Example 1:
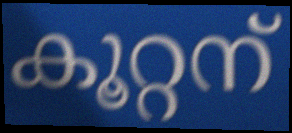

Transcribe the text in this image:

കൂറ്റന്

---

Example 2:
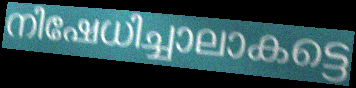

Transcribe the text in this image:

നിഷേധിച്ചാലാകട്ടെ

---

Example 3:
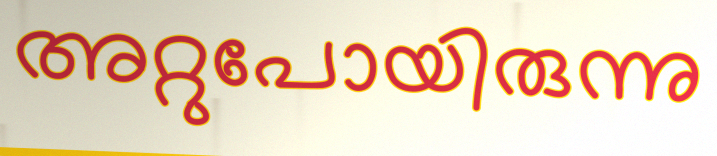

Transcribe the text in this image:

അറ്റുപോയിരുന്നു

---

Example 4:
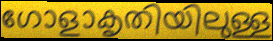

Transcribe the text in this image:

ഗോളാകൃതിയിലുള്ള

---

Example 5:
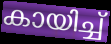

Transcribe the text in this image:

കായിച്ച്